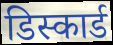
डिस्कार्ड